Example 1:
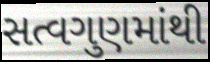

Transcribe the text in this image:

સત્વગુણમાંથી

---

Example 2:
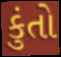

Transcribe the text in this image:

કુંતો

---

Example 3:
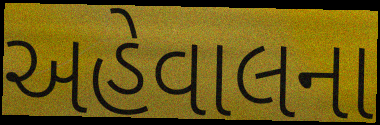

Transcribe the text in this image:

અહેવાલના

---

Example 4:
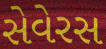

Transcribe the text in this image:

સેવેરસ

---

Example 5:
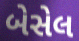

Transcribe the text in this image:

બેસેલ